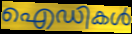
ഐഡികൾ